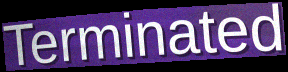
Terminated